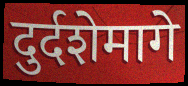
दुर्दशेमागे